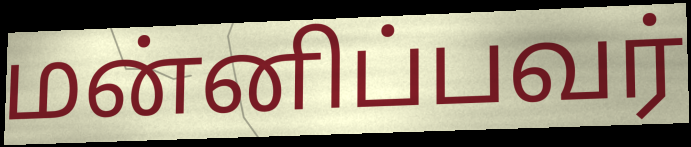
மன்னிப்பவர்